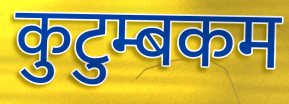
कुटुम्बकम